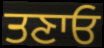
ਤਣਾਓ